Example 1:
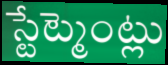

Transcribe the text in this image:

స్టేట్మెంట్లు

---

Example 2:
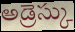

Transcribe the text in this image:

అడ్రెస్కు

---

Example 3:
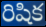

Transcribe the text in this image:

రిషిక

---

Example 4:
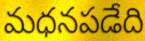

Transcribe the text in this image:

మధనపడేది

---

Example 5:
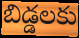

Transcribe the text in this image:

బిడ్డలకు